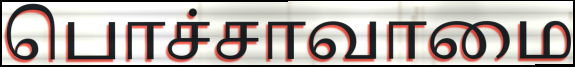
பொச்சாவாமை